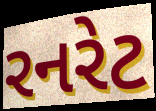
રનરેટ